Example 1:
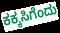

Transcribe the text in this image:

ಕಕ್ಕಸಿಗೆಂದು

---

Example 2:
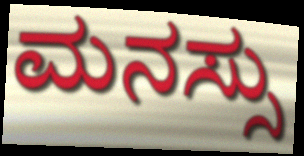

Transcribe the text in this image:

ಮನಸ್ಸು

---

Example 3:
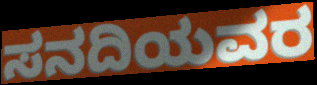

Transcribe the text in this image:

ಸನದಿಯವರ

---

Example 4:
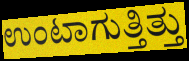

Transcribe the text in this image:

ಉಂಟಾಗುತ್ತಿತ್ತು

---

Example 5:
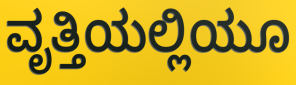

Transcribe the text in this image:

ವೃತ್ತಿಯಲ್ಲಿಯೂ